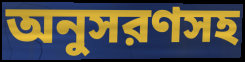
অনুসরণসহ